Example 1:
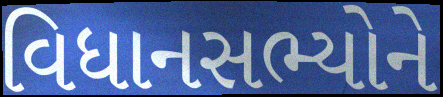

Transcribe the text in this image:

વિધાનસભ્યોને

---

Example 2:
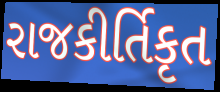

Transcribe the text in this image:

રાજકીર્તિકૃત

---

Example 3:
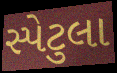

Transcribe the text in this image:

સ્પેટુલા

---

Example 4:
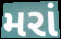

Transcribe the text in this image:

મરાં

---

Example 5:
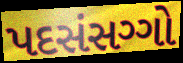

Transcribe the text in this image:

પદસંસગ્ગો